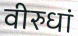
वीरुधां